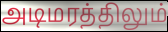
அடிமரத்திலும்